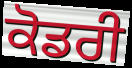
ਕੋਡਰੀ